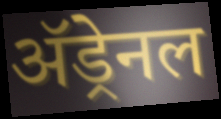
ॲड्रेनल